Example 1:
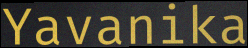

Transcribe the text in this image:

Yavanika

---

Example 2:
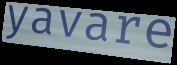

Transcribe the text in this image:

yavare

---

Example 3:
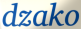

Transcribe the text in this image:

dzako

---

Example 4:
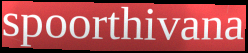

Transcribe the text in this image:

spoorthivana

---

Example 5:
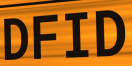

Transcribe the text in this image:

DFID